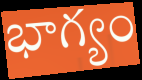
భాగ్యం